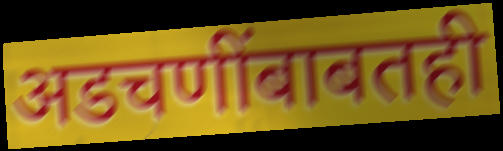
अडचणींबाबतही